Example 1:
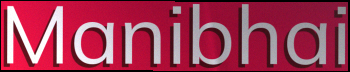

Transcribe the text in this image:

Manibhai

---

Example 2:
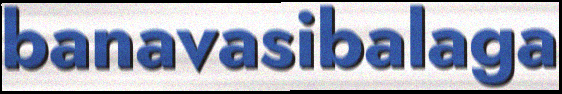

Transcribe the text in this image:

banavasibalaga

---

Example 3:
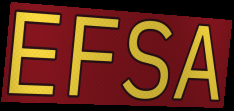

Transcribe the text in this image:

EFSA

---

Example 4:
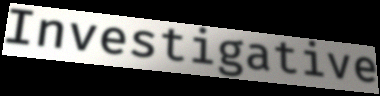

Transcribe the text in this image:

Investigative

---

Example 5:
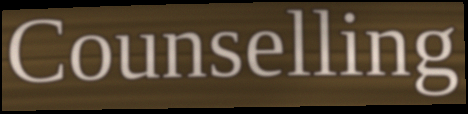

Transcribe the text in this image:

Counselling